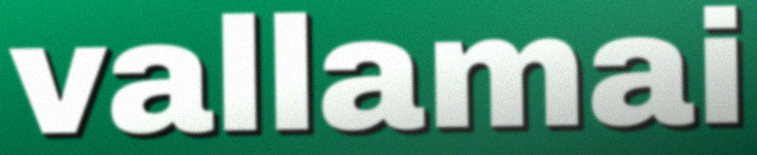
vallamai